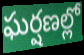
ఘర్షణల్లో